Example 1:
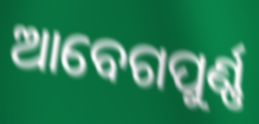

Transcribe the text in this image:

ଆବେଗପୁର୍ଣ୍ଣ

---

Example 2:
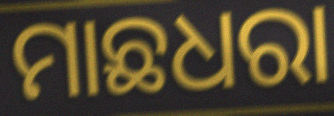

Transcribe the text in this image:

ମାଛଧରା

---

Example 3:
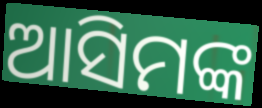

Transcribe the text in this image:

ଆସିମଙ୍କ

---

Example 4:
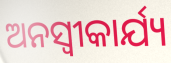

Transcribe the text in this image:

ଅନସ୍ୱୀକାର୍ଯ୍ୟ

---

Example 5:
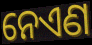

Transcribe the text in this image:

ନେଏଣ